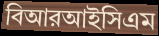
বিআরআইসিএম